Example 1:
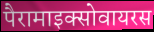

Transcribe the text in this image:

पैरामाइक्सोवायरस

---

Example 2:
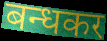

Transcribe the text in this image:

बन्धकर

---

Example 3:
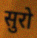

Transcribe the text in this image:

सुरो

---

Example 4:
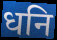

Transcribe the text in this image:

धनि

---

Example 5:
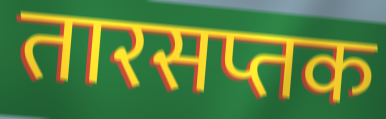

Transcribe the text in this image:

तारसप्तक